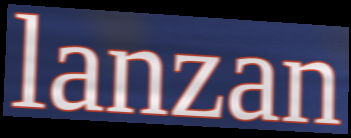
lanzan